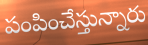
పంపించేస్తున్నారు